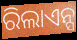
ରିଲାଏନ୍ସ